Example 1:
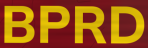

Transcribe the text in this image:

BPRD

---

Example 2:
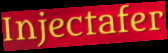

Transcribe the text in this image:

Injectafer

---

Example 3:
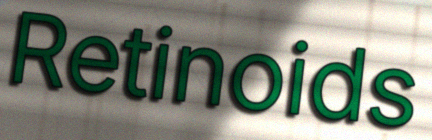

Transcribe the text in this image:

Retinoids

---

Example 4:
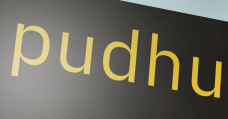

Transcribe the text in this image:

pudhu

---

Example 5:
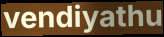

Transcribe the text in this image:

vendiyathu